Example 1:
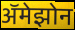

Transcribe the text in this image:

ॲमेझोन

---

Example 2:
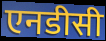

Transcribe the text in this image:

एनडीसी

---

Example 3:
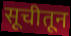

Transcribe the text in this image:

सूचीतून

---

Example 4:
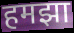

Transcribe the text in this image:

हमझा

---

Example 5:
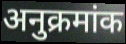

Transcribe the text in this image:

अनुक्रमांक